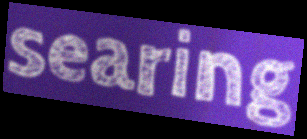
searing